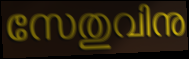
സേതുവിനു